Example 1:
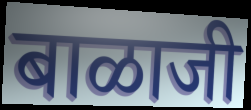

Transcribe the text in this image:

बाळाजी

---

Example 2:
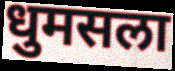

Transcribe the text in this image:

धुमसला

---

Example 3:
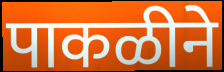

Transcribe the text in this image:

पाकळीने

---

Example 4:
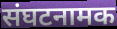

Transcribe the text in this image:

संघटनामक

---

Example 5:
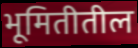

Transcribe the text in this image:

भूमितीतील